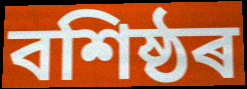
বশিষ্ঠৰ